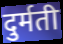
दुर्मती